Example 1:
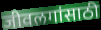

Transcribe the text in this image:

जीवलगांसाठी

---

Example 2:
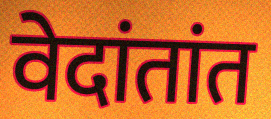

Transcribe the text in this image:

वेदांतांत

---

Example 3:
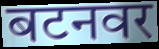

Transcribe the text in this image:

बटनवर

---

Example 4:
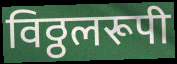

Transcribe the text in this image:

विठ्ठलरूपी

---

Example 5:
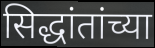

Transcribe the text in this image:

सिद्धांतांच्या